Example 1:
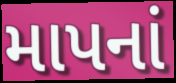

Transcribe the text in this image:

માપનાં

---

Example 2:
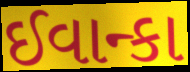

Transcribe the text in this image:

ઈવાન્કા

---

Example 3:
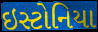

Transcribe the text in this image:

ઇસ્ટોનિયા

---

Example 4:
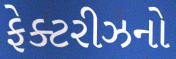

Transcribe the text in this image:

ફેક્ટરીઝનો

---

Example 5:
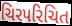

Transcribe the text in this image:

ચિરપરિચિત